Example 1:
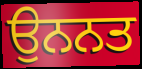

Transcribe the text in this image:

ਉਨਨਤ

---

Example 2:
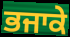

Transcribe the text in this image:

ਭਜਾਕੇ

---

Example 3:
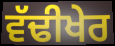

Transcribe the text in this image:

ਵੱਢੀਖੇਰ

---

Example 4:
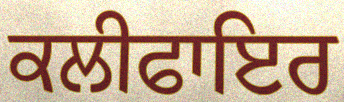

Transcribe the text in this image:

ਕਲੀਫਾਇਰ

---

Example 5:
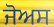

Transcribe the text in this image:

ਜੋਅਸ